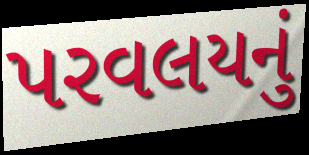
પરવલયનું